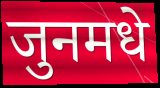
जुनमधे